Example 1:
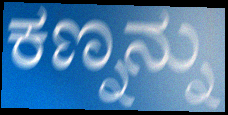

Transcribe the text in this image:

ಕಣ್ನನ್ನು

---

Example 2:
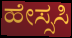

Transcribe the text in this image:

ಹೇಸ್ಸಸಿ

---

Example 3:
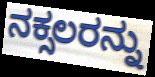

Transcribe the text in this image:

ನಕ್ಸಲರನ್ನು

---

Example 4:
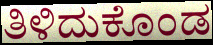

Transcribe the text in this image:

ತಿಳಿದುಕೊಂಡ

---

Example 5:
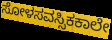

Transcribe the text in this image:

ಸೋಳಸವಸ್ಸಿಕಕಾಲೇ